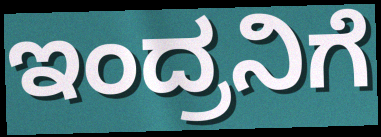
ಇಂದ್ರನಿಗೆ